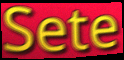
Sete